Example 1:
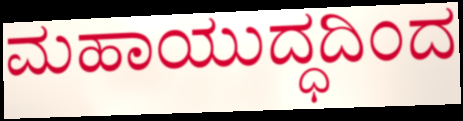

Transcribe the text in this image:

ಮಹಾಯುದ್ಧದಿಂದ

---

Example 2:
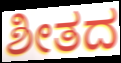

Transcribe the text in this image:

ಶೀತದ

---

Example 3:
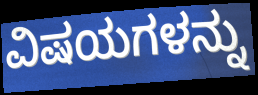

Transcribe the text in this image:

ವಿಷಯಗಳನ್ನು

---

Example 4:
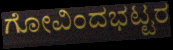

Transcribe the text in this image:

ಗೋವಿಂದಭಟ್ಟರ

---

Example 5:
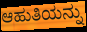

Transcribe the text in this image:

ಆಹುತಿಯನ್ನು